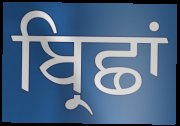
ਬ੍ਰਿਛਾਂ